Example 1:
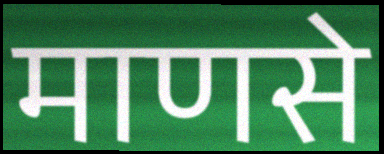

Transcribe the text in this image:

माणसे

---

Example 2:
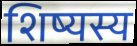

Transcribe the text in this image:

शिष्यस्य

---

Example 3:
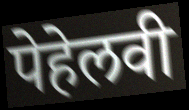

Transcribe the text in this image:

पेहेलवी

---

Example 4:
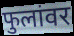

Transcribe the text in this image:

फुलांवर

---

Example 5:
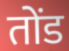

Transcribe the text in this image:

तोंड